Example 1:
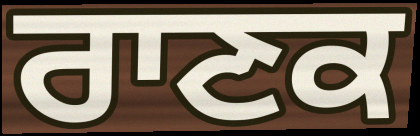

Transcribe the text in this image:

ਰਾਣਕ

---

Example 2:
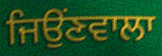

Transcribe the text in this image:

ਜਿਉਂਣਵਾਲਾ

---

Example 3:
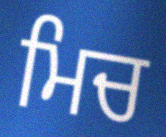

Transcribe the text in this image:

ਮਿਚ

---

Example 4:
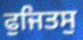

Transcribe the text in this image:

ਫੁਜਿਤਸੁ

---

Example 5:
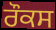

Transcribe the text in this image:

ਰੌਕਸ